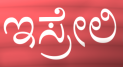
ಇಸ್ರೇಲಿ